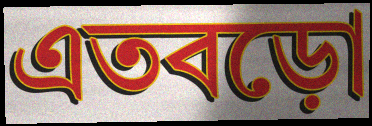
এতবড়ো